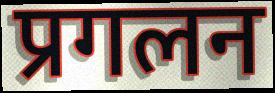
प्रगलन